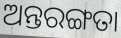
ଅନ୍ତରଙ୍ଗତା